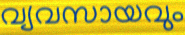
വ്യവസായവും